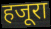
हजूरा